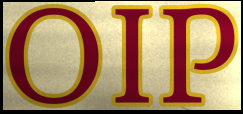
OIP